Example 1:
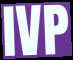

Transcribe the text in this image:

IVP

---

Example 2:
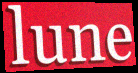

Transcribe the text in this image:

lune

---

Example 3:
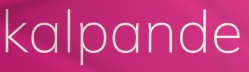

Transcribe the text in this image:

kalpande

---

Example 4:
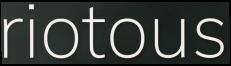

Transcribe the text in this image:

riotous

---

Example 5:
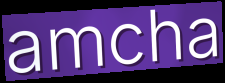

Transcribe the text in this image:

amcha